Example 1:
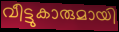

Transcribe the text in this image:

വീട്ടുകാരുമായി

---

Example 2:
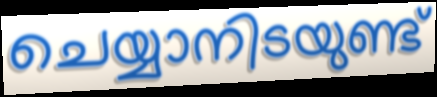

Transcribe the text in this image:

ചെയ്യാനിടയുണ്ട്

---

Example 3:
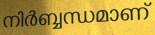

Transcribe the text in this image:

നിർബ്ബന്ധമാണ്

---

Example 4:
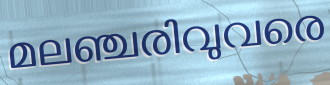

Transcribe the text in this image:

മലഞ്ചരിവുവരെ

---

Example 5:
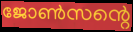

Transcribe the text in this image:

ജോൺസന്റെ